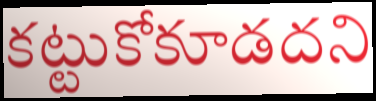
కట్టుకోకూడదని